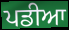
ਪਡੀਆ